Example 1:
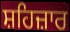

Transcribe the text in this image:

ਸ਼ਹਿਜ਼ਾਰ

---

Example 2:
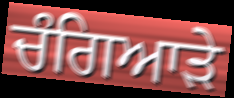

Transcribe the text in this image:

ਚੰਗਿਆੜੇ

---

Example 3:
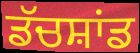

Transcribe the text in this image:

ਡੱਚਸ਼ਾਂਡ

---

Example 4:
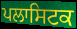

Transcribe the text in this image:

ਪਲਾਸਿਟਕ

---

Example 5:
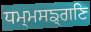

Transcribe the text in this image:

ਧਮ੍ਮਸਙ੍ਗਣਿ